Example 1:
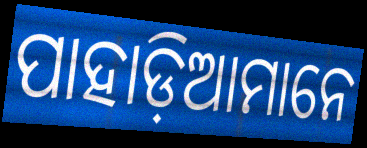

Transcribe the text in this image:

ପାହାଡ଼ିଆମାନେ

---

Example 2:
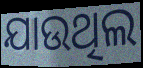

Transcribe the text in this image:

ଯାଉଥିଲ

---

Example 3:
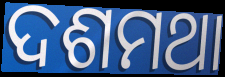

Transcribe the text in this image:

ଦଶମଥା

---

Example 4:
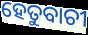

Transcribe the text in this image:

ହେତୁବାଚୀ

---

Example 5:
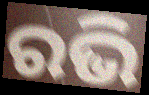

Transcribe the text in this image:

ରଭି